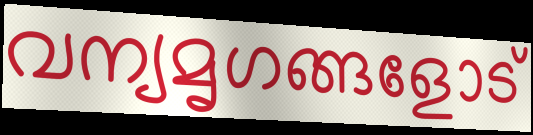
വന്യമൃഗങ്ങളോട്